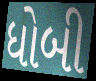
ધોબી